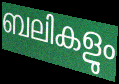
ബലികളും